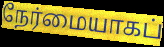
நேர்மையாகப்